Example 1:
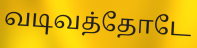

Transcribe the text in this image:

வடிவத்தோடே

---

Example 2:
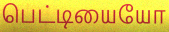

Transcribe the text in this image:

பெட்டியையோ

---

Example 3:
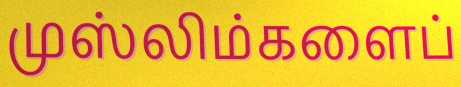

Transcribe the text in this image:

முஸ்லிம்களைப்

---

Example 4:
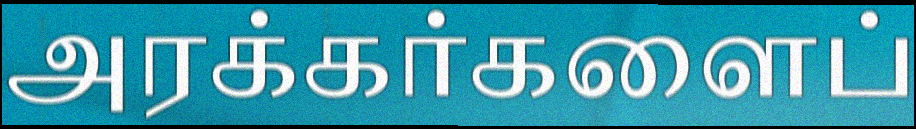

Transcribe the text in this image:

அரக்கர்களைப்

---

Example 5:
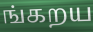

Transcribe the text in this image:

ங்கறய